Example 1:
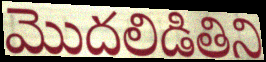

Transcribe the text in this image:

మొదలిడితిని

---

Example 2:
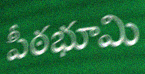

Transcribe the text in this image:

పీఠభూమి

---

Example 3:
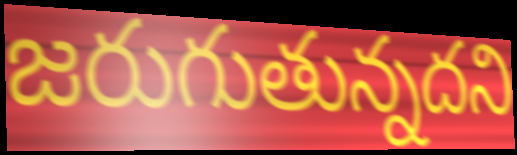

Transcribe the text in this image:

జరుగుతున్నదని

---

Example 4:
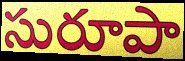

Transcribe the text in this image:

సురూపా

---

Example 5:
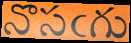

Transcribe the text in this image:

నొసఁగు